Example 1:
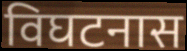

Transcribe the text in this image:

विघटनास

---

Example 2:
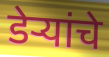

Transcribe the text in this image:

डेर्‍यांचे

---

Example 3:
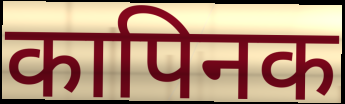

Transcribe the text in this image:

कापिनक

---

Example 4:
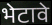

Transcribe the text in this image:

भेटावे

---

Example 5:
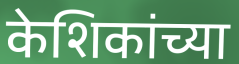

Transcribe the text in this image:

केशिकांच्या